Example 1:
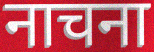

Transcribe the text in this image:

नाचना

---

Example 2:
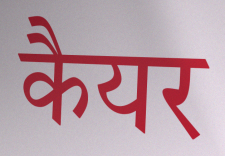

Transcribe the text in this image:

कैयर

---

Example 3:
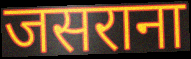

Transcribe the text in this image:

जसराना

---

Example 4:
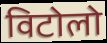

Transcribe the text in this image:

विटोलो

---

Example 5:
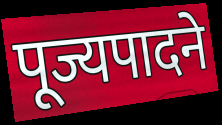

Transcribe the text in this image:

पूज्यपादने